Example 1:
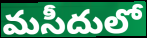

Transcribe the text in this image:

మసీదులో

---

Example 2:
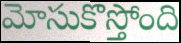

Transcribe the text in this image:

మోసుకొస్తోంది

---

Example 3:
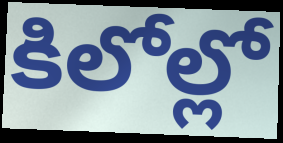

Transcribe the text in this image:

కిలోల్లో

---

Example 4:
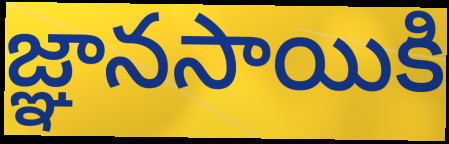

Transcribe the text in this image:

జ్ఞానసాయికి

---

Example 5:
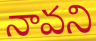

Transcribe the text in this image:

నావని